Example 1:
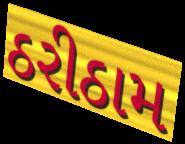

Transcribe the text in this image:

ઠરીઠામ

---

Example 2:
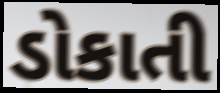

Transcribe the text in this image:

ડોકાતી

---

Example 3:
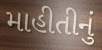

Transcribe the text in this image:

માહીતીનું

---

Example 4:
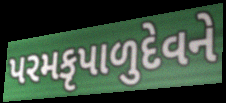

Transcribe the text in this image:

પરમકૃપાળુદેવને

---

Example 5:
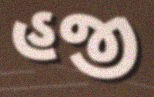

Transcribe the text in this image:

હજી